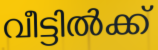
വീട്ടിൽക്ക്